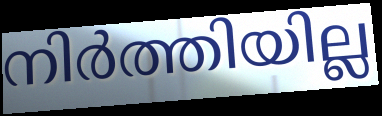
നിർത്തിയില്ല